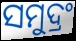
ସମୁଦ୍ରଂ